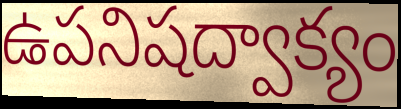
ఉపనిషద్వాక్యం